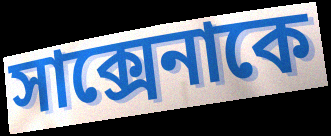
সাক্সেনাকে